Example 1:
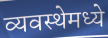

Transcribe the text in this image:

व्यवस्थेमध्ये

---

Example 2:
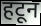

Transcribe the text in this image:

हटून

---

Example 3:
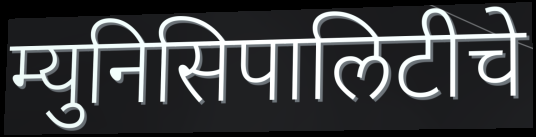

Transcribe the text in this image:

म्युनिसिपालिटीचे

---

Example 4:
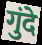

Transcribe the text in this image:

गुंदे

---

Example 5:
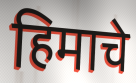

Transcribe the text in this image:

हिमाचे